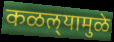
कळल्यामुळे